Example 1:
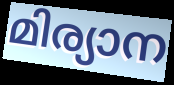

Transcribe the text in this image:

മിര്യാന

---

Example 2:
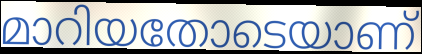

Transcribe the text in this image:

മാറിയതോടെയാണ്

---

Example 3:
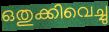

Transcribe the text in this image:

ഒതുക്കിവെച്ചു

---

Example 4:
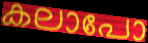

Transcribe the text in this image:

കലാപോ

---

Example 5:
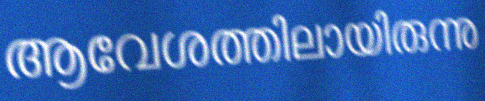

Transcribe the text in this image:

ആവേശത്തിലായിരുന്നു